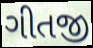
ગીતજી